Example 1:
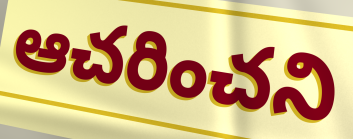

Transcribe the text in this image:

ఆచరించని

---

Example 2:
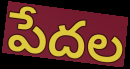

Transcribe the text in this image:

పేదల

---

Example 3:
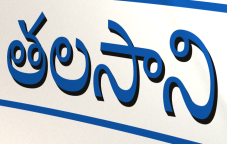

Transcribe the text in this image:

తలసాని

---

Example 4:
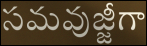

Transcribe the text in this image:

సమవుజ్జీగా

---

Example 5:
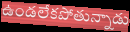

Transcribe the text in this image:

ఉండలేకపోతున్నాడు